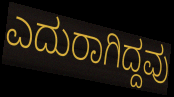
ಎದುರಾಗಿದ್ದವು